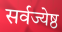
सर्वज्येष्ठ